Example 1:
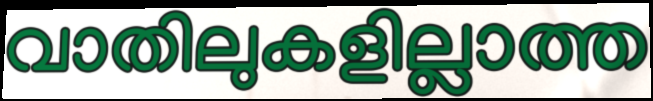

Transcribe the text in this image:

വാതിലുകളില്ലാത്ത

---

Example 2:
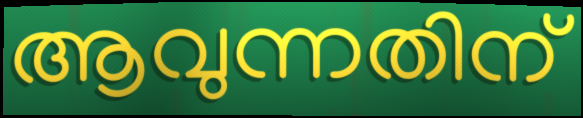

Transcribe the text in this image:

ആവുന്നതിന്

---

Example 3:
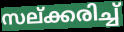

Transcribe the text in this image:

സല്ക്കരിച്ച്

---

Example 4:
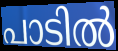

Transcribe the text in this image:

പാടിൽ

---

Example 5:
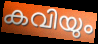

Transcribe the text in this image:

കവിയും